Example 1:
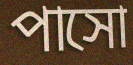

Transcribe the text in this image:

পাসো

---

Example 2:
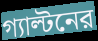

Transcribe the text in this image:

গ্যাল্টনের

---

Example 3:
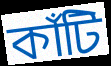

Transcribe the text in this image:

কাঁটি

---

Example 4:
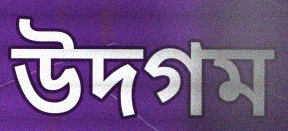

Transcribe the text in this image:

উদগম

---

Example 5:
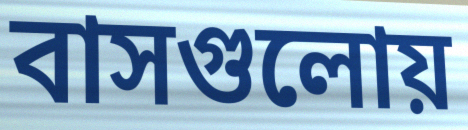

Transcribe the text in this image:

বাসগুলোয়